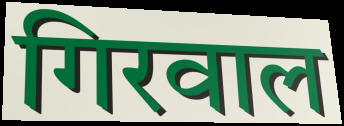
गिरवाल